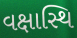
વક્ષાસ્થિ